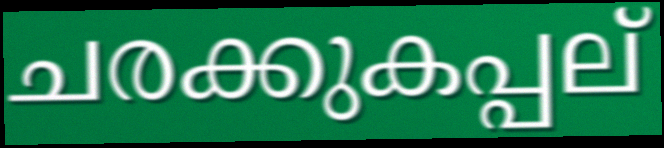
ചരക്കുകപ്പല്